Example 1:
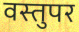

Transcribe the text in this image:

वस्तुपर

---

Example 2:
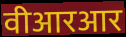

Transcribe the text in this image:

वीआरआर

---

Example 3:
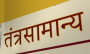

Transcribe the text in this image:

तंत्रसामान्य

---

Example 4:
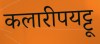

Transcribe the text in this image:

कलारीपयट्टू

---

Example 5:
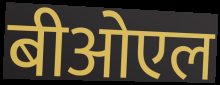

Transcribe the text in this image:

बीओएल